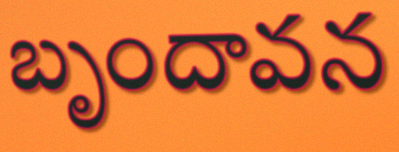
బృందావన